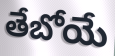
తేబోయే